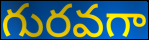
గురవగా